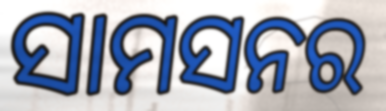
ସାମସନର